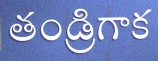
తండ్రిగాక